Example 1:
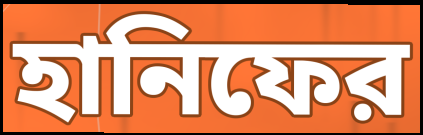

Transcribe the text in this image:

হানিফের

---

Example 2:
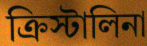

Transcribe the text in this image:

ক্রিস্টালিনা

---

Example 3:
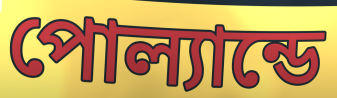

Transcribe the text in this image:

পোল্যান্ডে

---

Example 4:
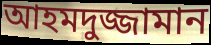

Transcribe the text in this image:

আহমদুজ্জামান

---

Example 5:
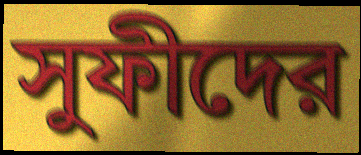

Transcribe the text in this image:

সুফীদের